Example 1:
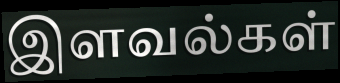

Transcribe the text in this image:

இளவல்கள்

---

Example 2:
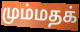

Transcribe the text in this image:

மும்மதக்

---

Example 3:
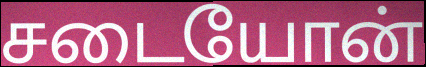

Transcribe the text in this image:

சடையோன்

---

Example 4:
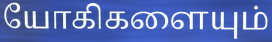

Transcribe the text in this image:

யோகிகளையும்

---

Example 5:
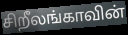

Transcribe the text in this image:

சிறீலங்காவின்